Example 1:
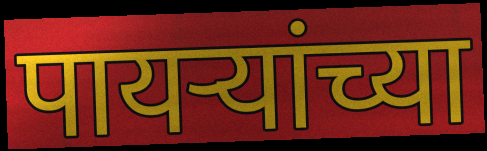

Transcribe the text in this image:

पायर्‍यांच्या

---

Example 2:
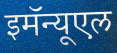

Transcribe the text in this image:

इमॅन्यूएल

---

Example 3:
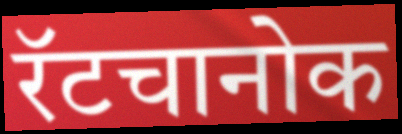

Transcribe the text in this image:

रॅटचानोक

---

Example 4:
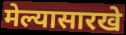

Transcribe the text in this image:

मेल्यासारखे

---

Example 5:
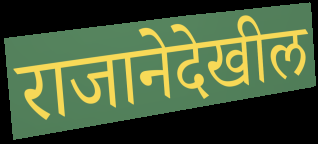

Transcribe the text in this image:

राजानेदेखील